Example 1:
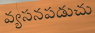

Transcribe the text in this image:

వ్యసనపడుచు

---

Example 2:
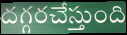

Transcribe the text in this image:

దగ్గరచేస్తుంది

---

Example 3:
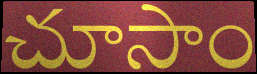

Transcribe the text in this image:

చూసాం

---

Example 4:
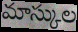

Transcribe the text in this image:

మాస్కుల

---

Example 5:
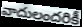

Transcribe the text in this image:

వాదులందరికీ